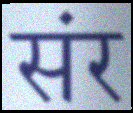
संर